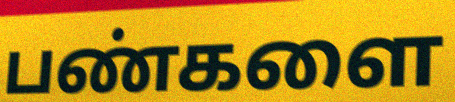
பண்களை